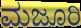
ಮಜೂರಿ